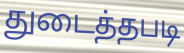
துடைத்தபடி